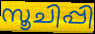
സൂചിപ്പി